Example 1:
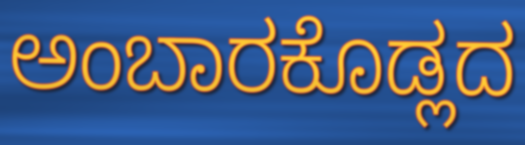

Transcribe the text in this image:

ಅಂಬಾರಕೊಡ್ಲದ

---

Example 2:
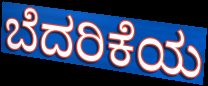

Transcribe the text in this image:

ಬೆದರಿಕೆಯ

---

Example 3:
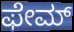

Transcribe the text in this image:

ಫೇಮ್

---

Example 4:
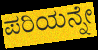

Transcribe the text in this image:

ಪರಿಯನ್ನೇ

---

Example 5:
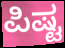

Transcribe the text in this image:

ಪಿಷ್ಟ